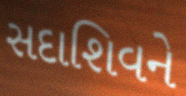
સદાશિવને